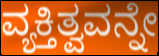
ವ್ಯಕ್ತಿತ್ವವನ್ನೇ